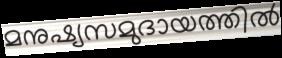
മനുഷ്യസമുദായത്തിൽ